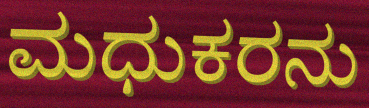
ಮಧುಕರನು